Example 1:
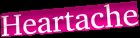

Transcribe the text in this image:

Heartache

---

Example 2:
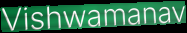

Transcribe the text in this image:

Vishwamanav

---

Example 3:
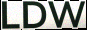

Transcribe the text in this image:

LDW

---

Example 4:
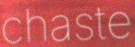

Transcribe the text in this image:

chaste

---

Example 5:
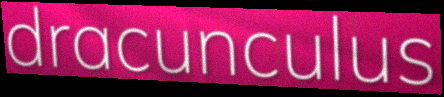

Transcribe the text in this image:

dracunculus